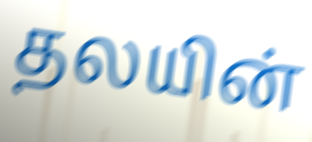
தலயின்